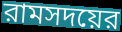
রামসদয়ের